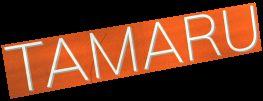
TAMARU